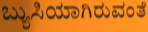
ಬ್ಯುಸಿಯಾಗಿರುವಂತೆ